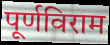
पूर्णविराम